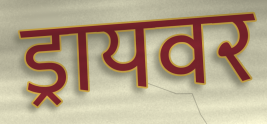
ड्रायवर